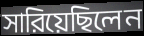
সারিয়েছিলেন